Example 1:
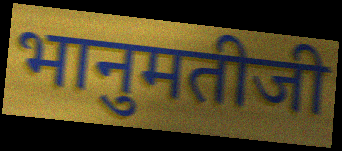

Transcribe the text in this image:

भानुमतीजी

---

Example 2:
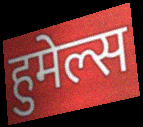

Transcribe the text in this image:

हुमेल्स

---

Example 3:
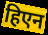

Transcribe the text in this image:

हिएन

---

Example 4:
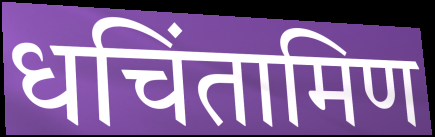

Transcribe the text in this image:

धचिंतामिण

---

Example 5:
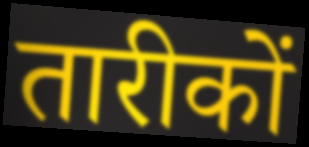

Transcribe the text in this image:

तारीकों